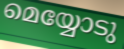
മെയ്യോടു